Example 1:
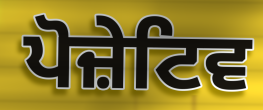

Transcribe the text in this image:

ਪੋਜ਼ੇਟਿਵ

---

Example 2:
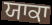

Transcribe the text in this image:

ਯਾਕਾ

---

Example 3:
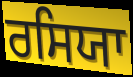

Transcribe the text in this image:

ਰਸਿਯਾ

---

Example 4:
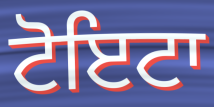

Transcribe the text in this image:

ਟੋਇਟਾ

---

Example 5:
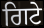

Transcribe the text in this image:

ਗਿਟੇ